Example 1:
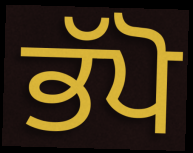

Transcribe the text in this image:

ਭੱਪੋ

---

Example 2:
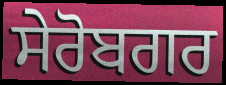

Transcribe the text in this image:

ਸੇਰੋਬਗਰ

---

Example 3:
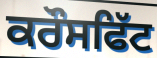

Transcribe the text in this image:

ਕਰੌਸਫਿੱਟ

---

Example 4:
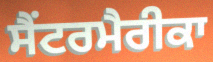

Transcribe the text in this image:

ਸੈਂਟਰਮੈਰੀਕਾ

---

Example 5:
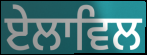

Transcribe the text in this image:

ਏਲਾਵਿਲ